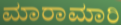
ಮಾರಾಮಾರಿ